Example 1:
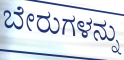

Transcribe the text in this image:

ಬೇರುಗಳನ್ನು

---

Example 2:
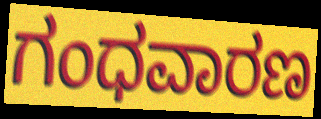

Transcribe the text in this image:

ಗಂಧವಾರಣ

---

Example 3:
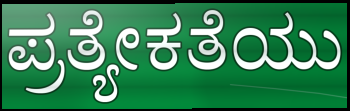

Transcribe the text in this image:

ಪ್ರತ್ಯೇಕತೆಯು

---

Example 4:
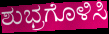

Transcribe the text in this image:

ಶುಭ್ರಗೊಳಿಸಿ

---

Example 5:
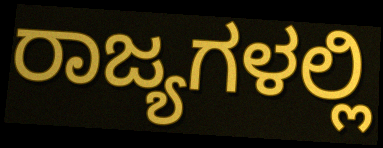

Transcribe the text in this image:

ರಾಜ್ಯಗಳಲ್ಲಿ